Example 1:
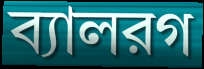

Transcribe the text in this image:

ব্যালরগ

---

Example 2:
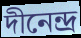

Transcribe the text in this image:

দীনেন্দ্র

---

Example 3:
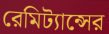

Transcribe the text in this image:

রেমিট্যান্সের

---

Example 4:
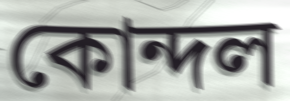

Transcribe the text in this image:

কোন্দল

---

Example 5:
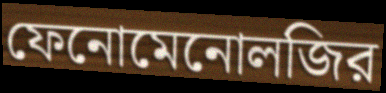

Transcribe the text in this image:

ফেনোমেনোলজির